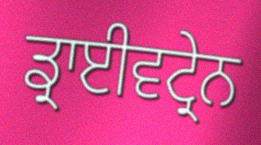
ਡ੍ਰਾਈਵਟ੍ਰੇਨ